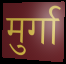
मुर्गा